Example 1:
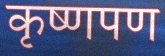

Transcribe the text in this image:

कृष्णपण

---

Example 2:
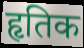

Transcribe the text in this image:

हृतिक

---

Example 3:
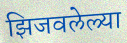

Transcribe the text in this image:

झिजवलेल्या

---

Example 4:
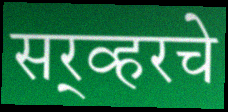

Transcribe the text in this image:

सर्व्हरचे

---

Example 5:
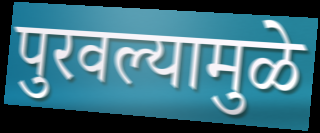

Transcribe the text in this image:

पुरवल्यामुळे